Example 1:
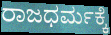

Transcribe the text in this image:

ರಾಜಧರ್ಮಕ್ಕೆ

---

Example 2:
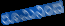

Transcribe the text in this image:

ರೂಮಿನಿಂದ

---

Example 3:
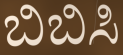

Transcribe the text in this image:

ಬಿಬಿಸಿ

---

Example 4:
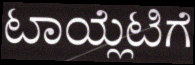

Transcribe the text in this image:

ಟಾಯ್ಲೆಟಿಗೆ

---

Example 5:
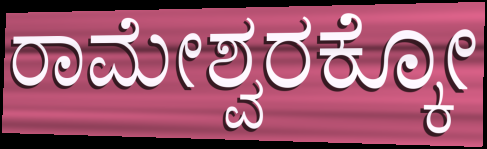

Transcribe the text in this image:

ರಾಮೇಶ್ವರಕ್ಕೋ